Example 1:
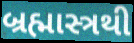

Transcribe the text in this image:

બ્રહ્માસ્ત્રથી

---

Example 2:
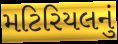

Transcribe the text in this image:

મટિરિયલનું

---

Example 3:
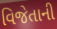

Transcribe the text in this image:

વિજેતાની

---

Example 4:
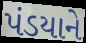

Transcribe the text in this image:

પંડયાને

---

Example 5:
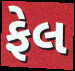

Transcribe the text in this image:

ફેલ